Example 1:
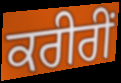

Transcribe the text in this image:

ਕਰੀਰੀਂ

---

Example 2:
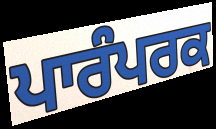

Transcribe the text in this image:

ਪਾਰੰਪਰਕ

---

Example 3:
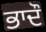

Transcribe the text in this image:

ਭਾਦੌ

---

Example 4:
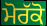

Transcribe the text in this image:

ਮੋਰੱਕੋ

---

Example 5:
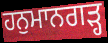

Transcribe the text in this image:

ਹਨੁਮਾਨਗੜ੍ਹ